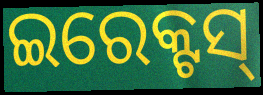
ଇରେକ୍ଟସ୍